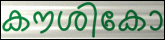
കൗശികോ